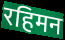
रहिमन